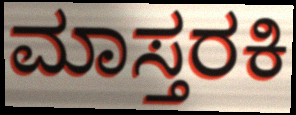
ಮಾಸ್ತರಕಿ